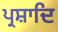
ਪ੍ਰਸ਼ਾਦਿ